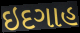
ઇદગાહ